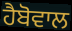
ਹੈਬੋਵਾਲ